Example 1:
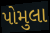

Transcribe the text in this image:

પોમુલા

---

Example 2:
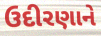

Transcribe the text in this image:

ઉદીરણાને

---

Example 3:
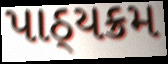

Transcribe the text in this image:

પાઠ્યક્રમ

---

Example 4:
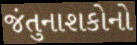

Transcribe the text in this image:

જંતુનાશકોનો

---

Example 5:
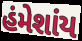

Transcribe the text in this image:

હંમેશાંય